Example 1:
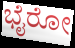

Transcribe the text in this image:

ಭೈರೋ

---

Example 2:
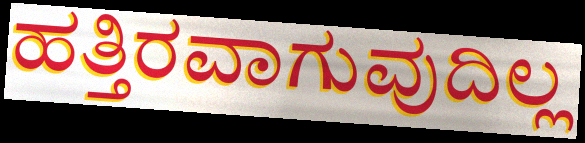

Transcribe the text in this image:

ಹತ್ತಿರವಾಗುವುದಿಲ್ಲ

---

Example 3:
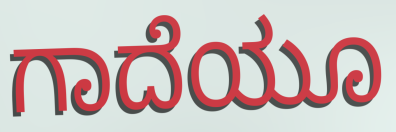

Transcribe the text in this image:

ಗಾದೆಯೂ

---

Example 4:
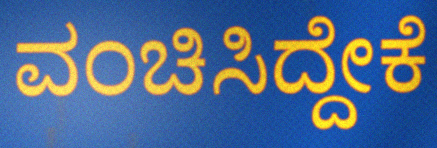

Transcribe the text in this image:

ವಂಚಿಸಿದ್ದೇಕೆ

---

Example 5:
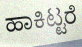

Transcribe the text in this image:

ಹಾಕಿಟ್ಟರೆ